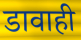
डावाही